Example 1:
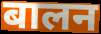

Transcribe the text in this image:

बालन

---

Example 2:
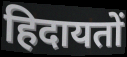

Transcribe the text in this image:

हिदायतों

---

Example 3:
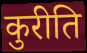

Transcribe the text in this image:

कुरीति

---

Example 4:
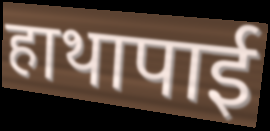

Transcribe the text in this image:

हाथापाई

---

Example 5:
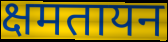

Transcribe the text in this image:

क्षमतायन